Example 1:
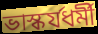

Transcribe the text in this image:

ভাস্কর্যধর্মী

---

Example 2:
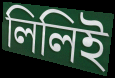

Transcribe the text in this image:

লিলিই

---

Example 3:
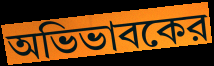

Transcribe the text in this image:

অভিভাবকের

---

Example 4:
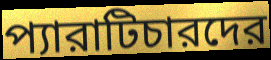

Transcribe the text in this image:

প্যারাটিচারদের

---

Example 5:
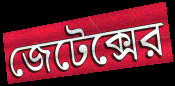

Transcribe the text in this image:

জেটেক্সের